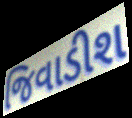
જિવાડીશ